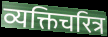
व्यक्तिचरित्र